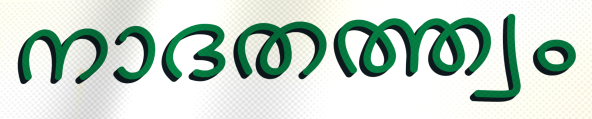
നാദതത്ത്വം